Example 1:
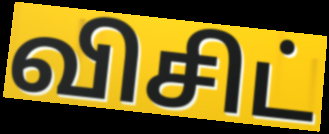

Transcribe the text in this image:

விசிட்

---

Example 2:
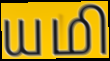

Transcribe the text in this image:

யமி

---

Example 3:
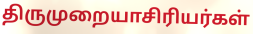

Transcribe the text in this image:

திருமுறையாசிரியர்கள்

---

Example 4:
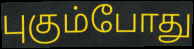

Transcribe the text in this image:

புகும்போது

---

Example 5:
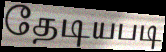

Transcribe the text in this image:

தேடியபடி